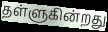
தள்ளுகின்றது